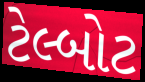
ટેલ્બોટ